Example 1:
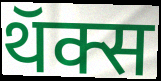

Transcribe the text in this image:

थॅक्स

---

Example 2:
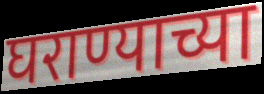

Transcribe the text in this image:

घराण्याच्या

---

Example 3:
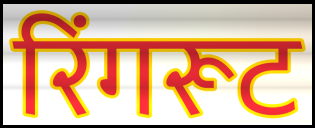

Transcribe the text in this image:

रिंगरूट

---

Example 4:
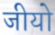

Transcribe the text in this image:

जीयो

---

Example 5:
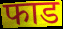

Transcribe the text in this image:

फाड